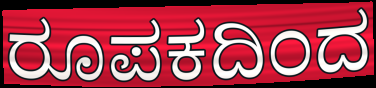
ರೂಪಕದಿಂದ